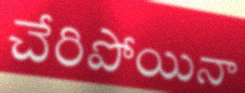
చేరిపోయినా